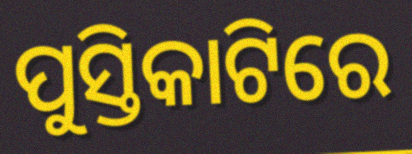
ପୁସ୍ତିକାଟିରେ